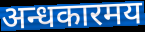
अन्धकारमय